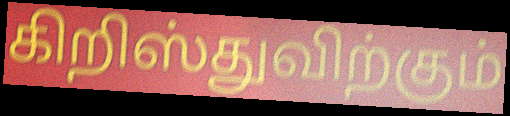
கிறிஸ்துவிற்கும்